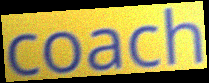
coach